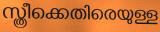
സ്ത്രീക്കെതിരെയുള്ള